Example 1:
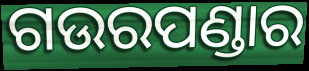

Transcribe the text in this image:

ଗଉରପଣ୍ଡାର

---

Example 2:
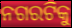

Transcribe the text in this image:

ନଗରଟିକୁ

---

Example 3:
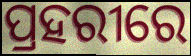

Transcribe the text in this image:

ପ୍ରହରୀରେ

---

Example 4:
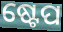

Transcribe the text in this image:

ଷ୍ଟେପ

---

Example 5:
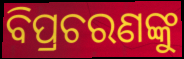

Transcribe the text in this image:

ବିପ୍ରଚରଣଙ୍କୁ